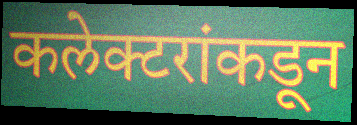
कलेक्टरांकडून